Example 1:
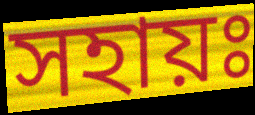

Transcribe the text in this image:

সহায়ঃ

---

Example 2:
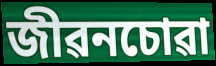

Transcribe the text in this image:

জীৱনচোৱা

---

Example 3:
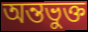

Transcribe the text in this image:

অন্তভুক্ত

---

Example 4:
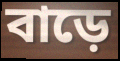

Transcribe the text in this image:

বাড়ে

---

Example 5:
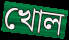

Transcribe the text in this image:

খোল